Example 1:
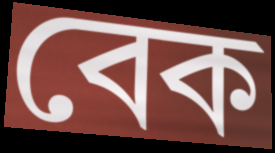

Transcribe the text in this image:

বেক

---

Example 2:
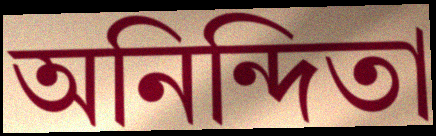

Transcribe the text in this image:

অনিন্দিতা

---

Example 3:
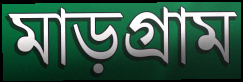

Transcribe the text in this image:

মাড়গ্রাম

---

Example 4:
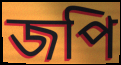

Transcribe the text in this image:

জপি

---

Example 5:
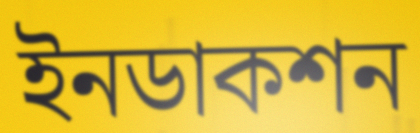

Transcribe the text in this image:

ইনডাকশন